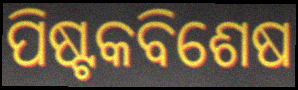
ପିଷ୍ଟକବିଶେଷ